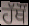
ਹੱਥੌਂ